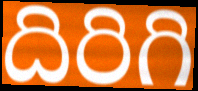
దిరిగి